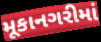
મૂકાનગરીમાં